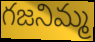
గజనిమ్మ